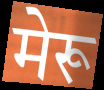
मेरू